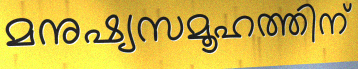
മനുഷ്യസമൂഹത്തിന്